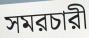
সমরচারী